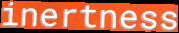
inertness